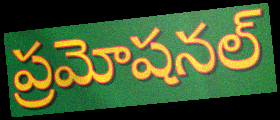
ప్రమోషనల్